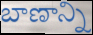
బాణాన్ని